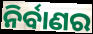
ନିର୍ବାଣର